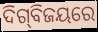
ଦିଗ୍‌ବିଜୟରେ